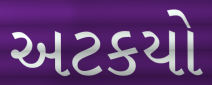
અટકયો